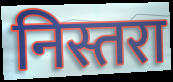
निस्तरा